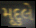
મૃદુલે